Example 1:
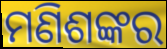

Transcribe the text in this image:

ମଣିଶଙ୍କର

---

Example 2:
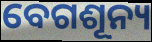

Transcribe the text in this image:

ବେଗଶୂନ୍ୟ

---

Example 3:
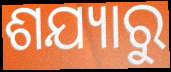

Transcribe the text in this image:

ଶଯ୍ୟାରୁ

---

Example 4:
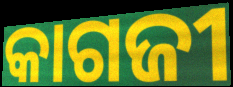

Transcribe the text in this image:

କାଗଜୀ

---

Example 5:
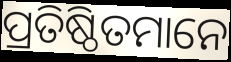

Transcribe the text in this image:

ପ୍ରତିଷ୍ଠିତମାନେ